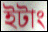
ইটাং